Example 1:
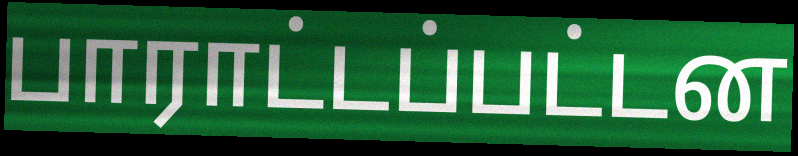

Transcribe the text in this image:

பாராட்டப்பட்டன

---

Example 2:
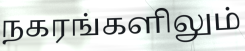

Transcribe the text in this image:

நகரங்களிலும்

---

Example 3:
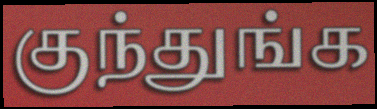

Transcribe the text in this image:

குந்துங்க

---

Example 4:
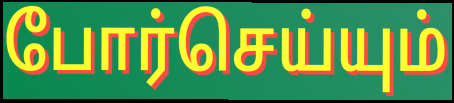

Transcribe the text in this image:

போர்செய்யும்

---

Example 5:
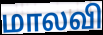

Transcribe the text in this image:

மாலவி